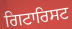
ਗਿਟਾਰਿਸਟ